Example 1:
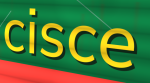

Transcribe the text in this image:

cisce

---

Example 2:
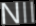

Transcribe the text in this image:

NII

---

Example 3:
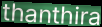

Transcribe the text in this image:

thanthira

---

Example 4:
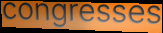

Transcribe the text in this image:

congresses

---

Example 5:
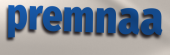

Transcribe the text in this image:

premnaa